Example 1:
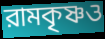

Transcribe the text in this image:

রামকৃষ্ণও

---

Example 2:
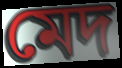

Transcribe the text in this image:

মেদ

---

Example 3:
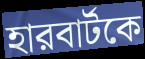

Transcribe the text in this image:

হারবার্টকে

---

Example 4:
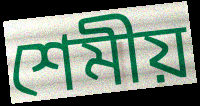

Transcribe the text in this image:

শেমীয়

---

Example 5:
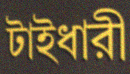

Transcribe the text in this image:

টাইধারী